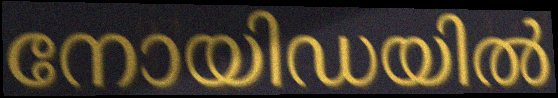
നോയിഡയിൽ